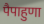
पैपाहुणा